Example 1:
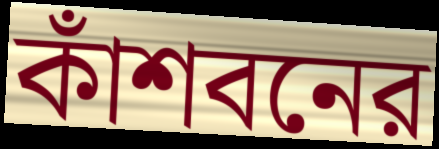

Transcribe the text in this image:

কাঁশবনের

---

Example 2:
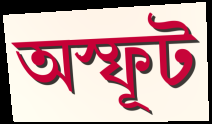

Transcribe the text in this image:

অস্ফূট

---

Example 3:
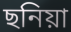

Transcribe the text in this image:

ছনিয়া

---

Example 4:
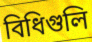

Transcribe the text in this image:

বিধিগুলি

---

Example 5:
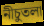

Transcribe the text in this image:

নীচুতলা